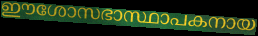
ഈശോസഭാസ്ഥാപകനായ